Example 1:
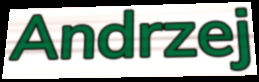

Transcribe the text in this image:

Andrzej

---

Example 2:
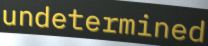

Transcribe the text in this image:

undetermined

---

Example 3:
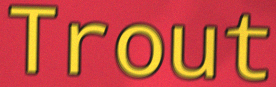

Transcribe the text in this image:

Trout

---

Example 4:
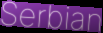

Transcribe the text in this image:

Serbian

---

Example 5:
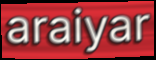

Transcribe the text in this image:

araiyar